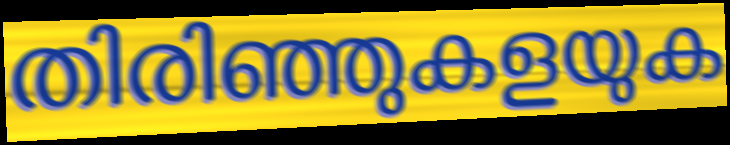
തിരിഞ്ഞുകളയുക